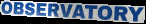
OBSERVATORY